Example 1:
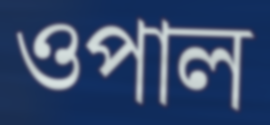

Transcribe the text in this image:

ওপাল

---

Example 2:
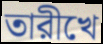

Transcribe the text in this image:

তারীখে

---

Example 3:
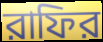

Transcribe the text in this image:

রাফির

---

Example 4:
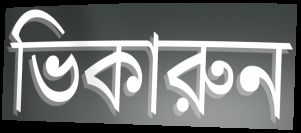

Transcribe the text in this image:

ভিকারুন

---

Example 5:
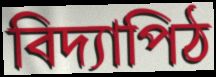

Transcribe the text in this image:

বিদ্যাপিঠ